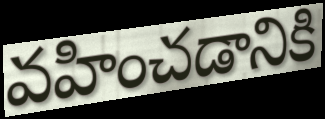
వహించడానికి